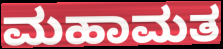
ಮಹಾಮತ